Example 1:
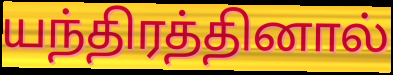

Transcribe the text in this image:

யந்திரத்தினால்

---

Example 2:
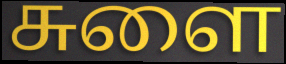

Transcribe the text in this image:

சுளை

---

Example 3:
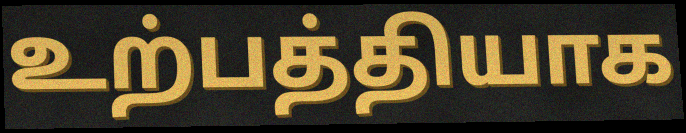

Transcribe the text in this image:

உற்பத்தியாக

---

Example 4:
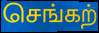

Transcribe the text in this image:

செங்கற்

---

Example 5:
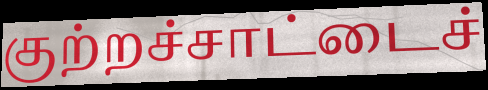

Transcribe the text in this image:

குற்றச்சாட்டைச்